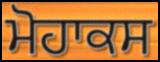
ਮੋਹਾਕਸ